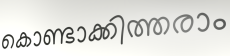
കൊണ്ടാക്കിത്തരാം